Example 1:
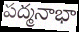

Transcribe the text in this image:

పద్మనాభా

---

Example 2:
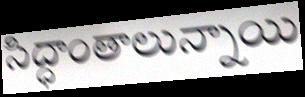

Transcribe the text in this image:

సిద్ధాంతాలున్నాయి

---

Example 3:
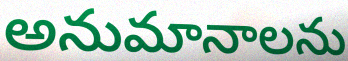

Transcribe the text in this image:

అనుమానాలను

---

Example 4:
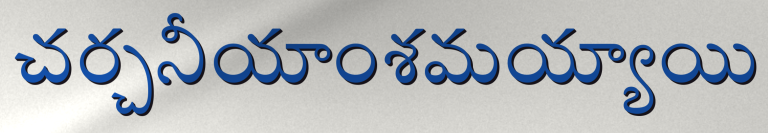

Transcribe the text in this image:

చర్చనీయాంశమయ్యాయి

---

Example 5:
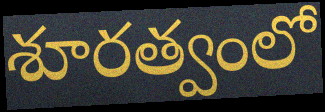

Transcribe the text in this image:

శూరత్వంలో